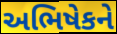
અભિષેકને